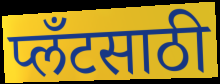
प्लँटसाठी